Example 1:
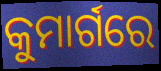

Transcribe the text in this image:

କୁମାର୍ଗରେ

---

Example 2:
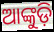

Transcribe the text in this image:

ଆଙ୍କୁଡ଼ି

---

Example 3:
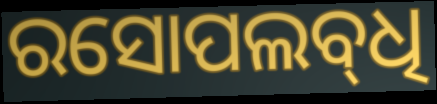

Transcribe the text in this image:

ରସୋପଲବ୍‌ଧି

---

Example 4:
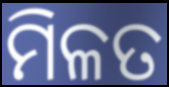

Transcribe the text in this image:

ମିଳତ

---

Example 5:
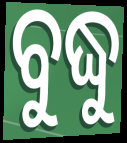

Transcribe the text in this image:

ବୁଦ୍ଧୁ